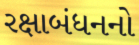
રક્ષાબંધનનો